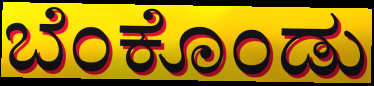
ಬೆಂಕೊಂಡು